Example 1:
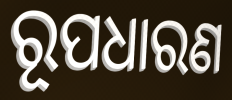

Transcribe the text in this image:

ରୂପଧାରଣ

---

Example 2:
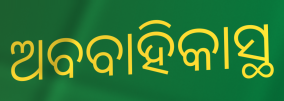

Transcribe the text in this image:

ଅବବାହିକାସ୍ଥ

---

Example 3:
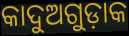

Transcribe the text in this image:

କାଦୁଅଗୁଡ଼ାକ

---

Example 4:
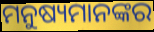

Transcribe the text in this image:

ମନୁଷ୍ୟମାନଙ୍କର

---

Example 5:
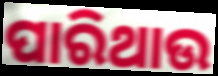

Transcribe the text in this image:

ପାରିଥାଉ